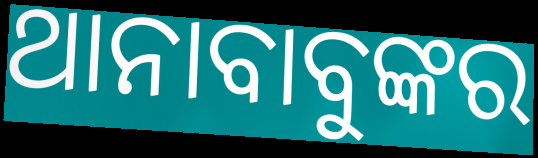
ଥାନାବାବୁଙ୍କର